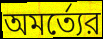
অমর্ত্যের